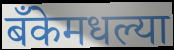
बँकेमधल्या